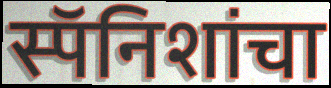
स्पॅनिशांचा